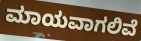
ಮಾಯವಾಗಲಿವೆ